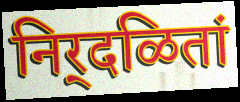
निर्दळितां